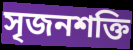
সৃজনশক্তি